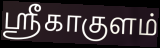
ஸ்ரீகாகுளம்